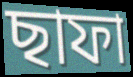
ছাফা